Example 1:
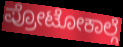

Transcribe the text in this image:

ಪ್ರೋಟೋಕಾಲ್ಗೆ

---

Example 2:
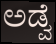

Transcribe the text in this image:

ಅಡ್ವೆ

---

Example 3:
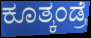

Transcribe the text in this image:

ಕೂತ್ಕಂಡ್ರೆ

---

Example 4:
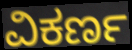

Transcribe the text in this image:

ವಿಕರ್ಣ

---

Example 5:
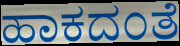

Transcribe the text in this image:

ಹಾಕದಂತೆ